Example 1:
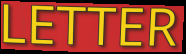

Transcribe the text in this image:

LETTER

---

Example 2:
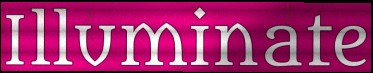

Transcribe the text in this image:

Illuminate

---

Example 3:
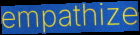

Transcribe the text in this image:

empathize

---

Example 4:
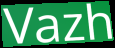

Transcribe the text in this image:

Vazh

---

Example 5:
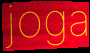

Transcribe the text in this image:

joga